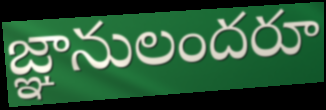
జ్ఞానులందరూ